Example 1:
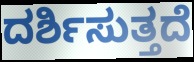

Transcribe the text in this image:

ದರ್ಶಿಸುತ್ತದೆ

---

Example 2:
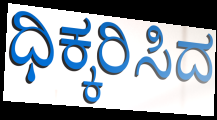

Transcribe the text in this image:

ಧಿಕ್ಕರಿಸಿದ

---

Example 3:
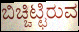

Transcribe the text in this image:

ಬಿಚ್ಚಿಟ್ಟಿರುವ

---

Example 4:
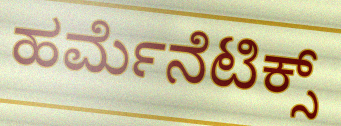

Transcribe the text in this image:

ಹರ್ಮೆನೆಟಿಕ್ಸ್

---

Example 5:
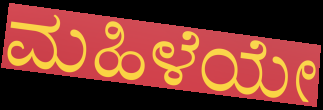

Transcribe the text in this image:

ಮಹಿಳೆಯೇ